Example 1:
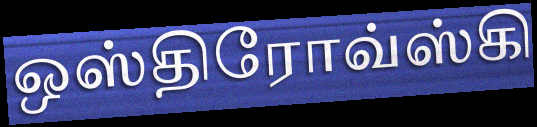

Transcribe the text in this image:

ஒஸ்திரோவ்ஸ்கி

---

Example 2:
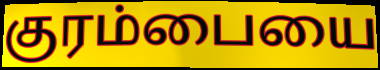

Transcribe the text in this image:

குரம்பையை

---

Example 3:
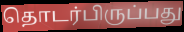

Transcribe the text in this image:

தொடர்பிருப்பது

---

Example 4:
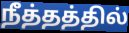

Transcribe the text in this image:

நீத்தத்தில்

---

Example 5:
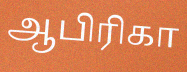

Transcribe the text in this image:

ஆபிரிகா